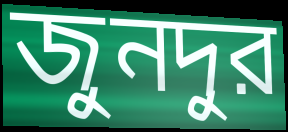
জুনদুর